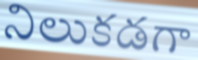
నిలుకడగా